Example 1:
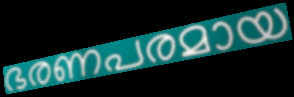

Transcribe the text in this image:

ഭരണപരമായ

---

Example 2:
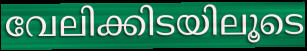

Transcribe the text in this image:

വേലിക്കിടയിലൂടെ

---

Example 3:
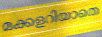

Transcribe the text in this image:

മക്കളറിയാതെ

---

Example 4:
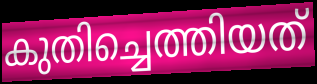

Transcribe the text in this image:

കുതിച്ചെത്തിയത്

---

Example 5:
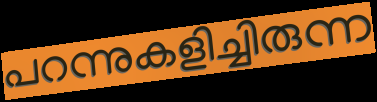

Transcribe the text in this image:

പറന്നുകളിച്ചിരുന്ന